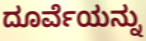
ದೂರ್ವೆಯನ್ನು